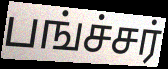
பங்ச்சர்